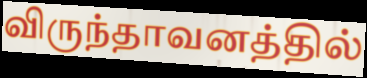
விருந்தாவனத்தில்